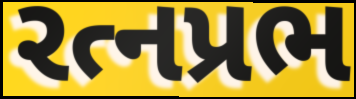
રત્નપ્રભ